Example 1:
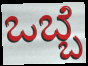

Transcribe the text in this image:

ಒಬ್ಬೆ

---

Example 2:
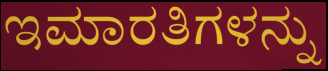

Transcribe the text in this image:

ಇಮಾರತಿಗಳನ್ನು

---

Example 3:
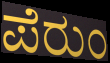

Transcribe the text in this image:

ಪೆರುಂ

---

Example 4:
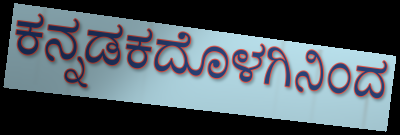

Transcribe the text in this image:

ಕನ್ನಡಕದೊಳಗಿನಿಂದ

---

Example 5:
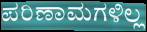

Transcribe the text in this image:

ಪರಿಣಾಮಗಳಿಲ್ಲ